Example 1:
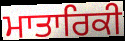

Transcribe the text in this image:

ਮਾਤਾਰਿਕੀ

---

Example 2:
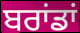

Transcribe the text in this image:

ਬਰਾਂਡਾਂ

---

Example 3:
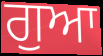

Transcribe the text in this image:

ਗੁਆ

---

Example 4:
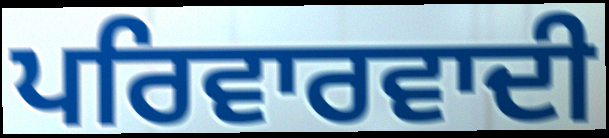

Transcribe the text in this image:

ਪਰਿਵਾਰਵਾਦੀ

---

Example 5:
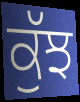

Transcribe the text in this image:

ਕੁੱਝ